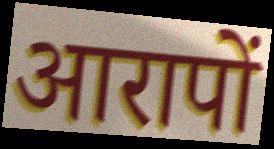
आरापों